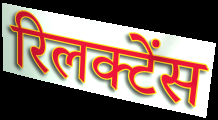
रिलक्टेंस